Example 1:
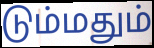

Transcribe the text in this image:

டும்மதும்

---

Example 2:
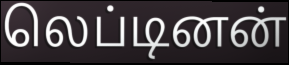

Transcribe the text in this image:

லெப்டினன்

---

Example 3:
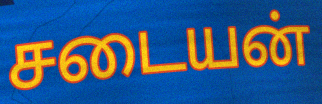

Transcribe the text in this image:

சடையன்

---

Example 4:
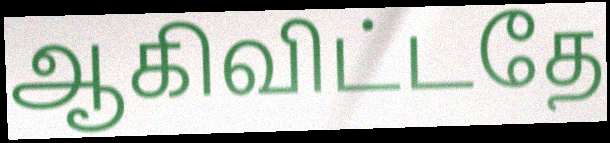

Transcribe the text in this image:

ஆகிவிட்டதே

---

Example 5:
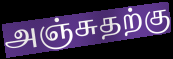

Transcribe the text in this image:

அஞ்சுதற்கு